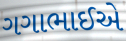
ગગાભાઈએ